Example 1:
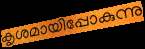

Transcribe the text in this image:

കൃശമായിപ്പോകുന്നു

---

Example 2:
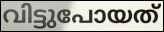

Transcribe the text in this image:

വിട്ടുപോയത്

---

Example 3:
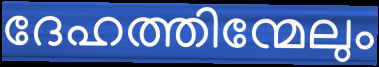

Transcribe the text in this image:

ദേഹത്തിന്മേലും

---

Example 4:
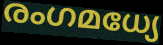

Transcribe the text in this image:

രംഗമധ്യേ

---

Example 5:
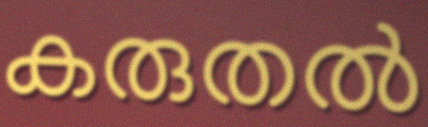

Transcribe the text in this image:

കരുതൽ